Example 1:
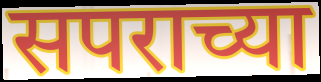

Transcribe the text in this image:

सपराच्या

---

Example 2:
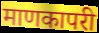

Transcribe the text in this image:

माणकापरी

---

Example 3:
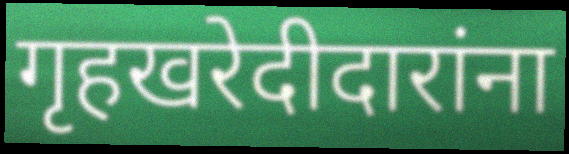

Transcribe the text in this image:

गृहखरेदीदारांना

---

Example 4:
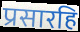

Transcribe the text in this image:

प्रसारहि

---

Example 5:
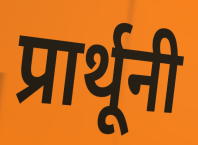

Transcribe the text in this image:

प्रार्थूनी